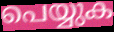
പെയ്യുക